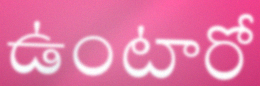
ఉంటారో